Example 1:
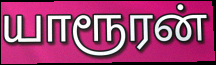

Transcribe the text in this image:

யாரூரன்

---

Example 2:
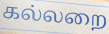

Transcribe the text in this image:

கல்லறை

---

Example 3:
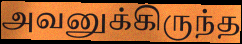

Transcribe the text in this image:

அவனுக்கிருந்த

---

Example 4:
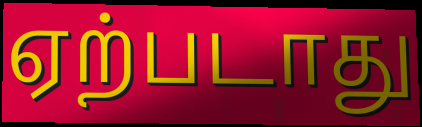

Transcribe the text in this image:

ஏற்படாது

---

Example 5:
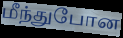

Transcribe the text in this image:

மீந்துபோன